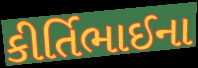
કીર્તિભાઈના